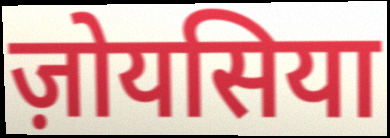
ज़ोयसिया